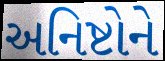
અનિષ્ટોને